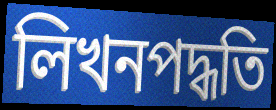
লিখনপদ্ধতি